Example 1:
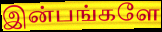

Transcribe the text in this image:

இன்பங்களே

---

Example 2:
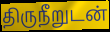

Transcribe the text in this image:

திருநீறுடன்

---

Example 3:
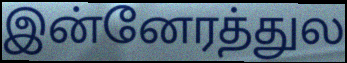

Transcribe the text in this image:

இன்னேரத்துல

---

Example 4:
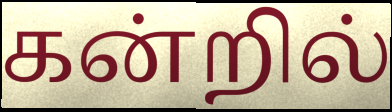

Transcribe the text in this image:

கன்றில்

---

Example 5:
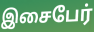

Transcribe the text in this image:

இசைபேர்